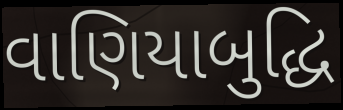
વાણિયાબુદ્ધિ